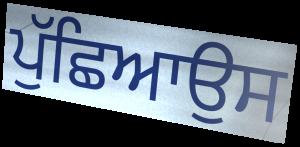
ਪੁੱਛਿਆਉਸ